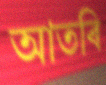
আতৰি